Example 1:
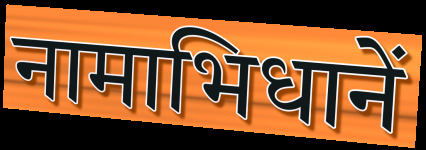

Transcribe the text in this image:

नामाभिधानें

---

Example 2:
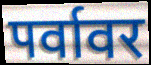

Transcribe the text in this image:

पर्वावर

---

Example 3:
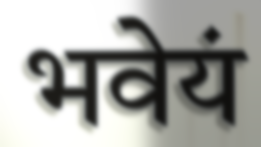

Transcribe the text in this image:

भवेयं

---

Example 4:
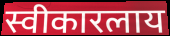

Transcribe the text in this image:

स्वीकारलाय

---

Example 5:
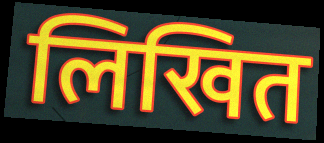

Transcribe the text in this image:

लिखित